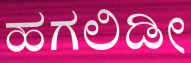
ಹಗಲಿಡೀ